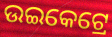
ଉଇକେଟ୍ରେ